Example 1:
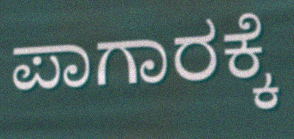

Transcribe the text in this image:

ಪಾಗಾರಕ್ಕೆ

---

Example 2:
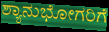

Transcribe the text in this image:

ಶ್ಯಾನುಭೋಗರಿಗೆ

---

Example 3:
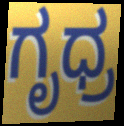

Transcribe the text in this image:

ಗೃಧ್ರ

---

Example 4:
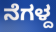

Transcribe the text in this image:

ನೆಗಳ್ದ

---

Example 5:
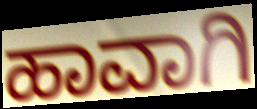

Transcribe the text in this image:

ಹಾವಾಗಿ